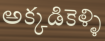
అక్కడికెళ్ళి